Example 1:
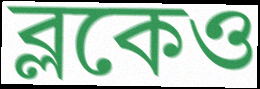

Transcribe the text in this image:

ব্লকেও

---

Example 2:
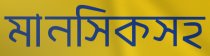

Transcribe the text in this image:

মানসিকসহ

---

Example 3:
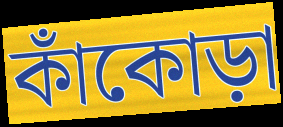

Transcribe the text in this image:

কাঁকোড়া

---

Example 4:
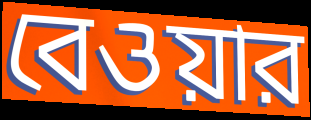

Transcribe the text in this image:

বেওয়ার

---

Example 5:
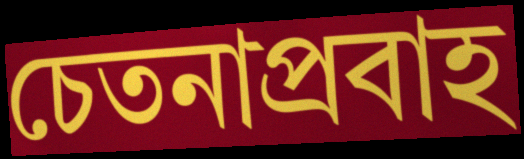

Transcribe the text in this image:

চেতনাপ্রবাহ